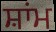
ਸ਼ਾਂਮ